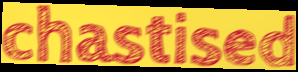
chastised